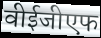
वीईजीएफ